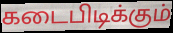
கடைபிடிக்கும்